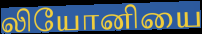
லியோனியை